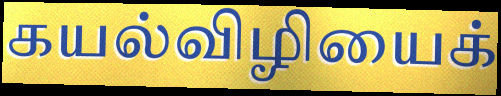
கயல்விழியைக்